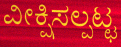
ವೀಕ್ಷಿಸಲ್ಪಟ್ಟ